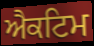
ਐਕਟਿਮ